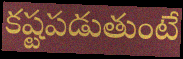
కష్టపడుతుంటే